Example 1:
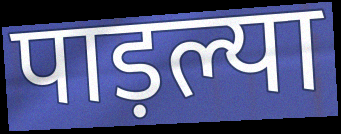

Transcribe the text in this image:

पाड़ल्या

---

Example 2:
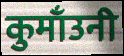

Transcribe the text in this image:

कुमाँउनी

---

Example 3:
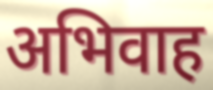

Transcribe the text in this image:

अभिवाह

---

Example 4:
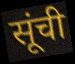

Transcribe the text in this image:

सूंची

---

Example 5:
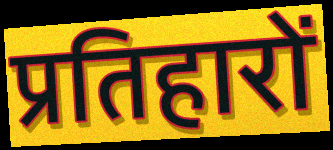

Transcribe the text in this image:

प्रतिहारों